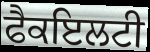
ਫੈਕਇਲਟੀ